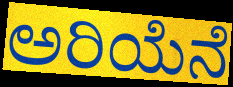
ಅರಿಯೆನೆ